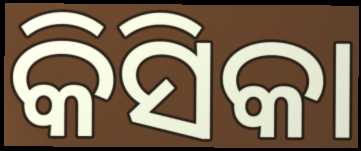
କିସିକା